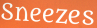
Sneezes